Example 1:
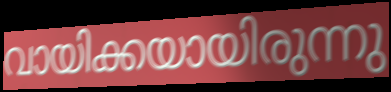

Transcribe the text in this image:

വായിക്കയായിരുന്നു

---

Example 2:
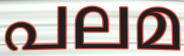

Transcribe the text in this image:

പലമ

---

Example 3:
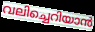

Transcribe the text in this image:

വലിച്ചെറിയാൻ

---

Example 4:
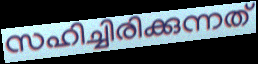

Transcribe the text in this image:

സഹിച്ചിരിക്കുന്നത്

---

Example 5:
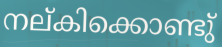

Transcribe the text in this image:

നല്കിക്കൊണ്ടു്